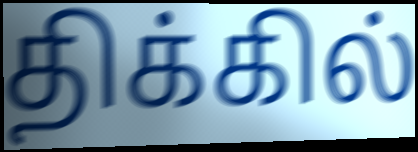
திக்கில்